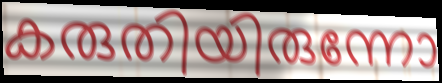
കരുതിയിരുന്നോ